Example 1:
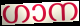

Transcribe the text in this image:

ഗാന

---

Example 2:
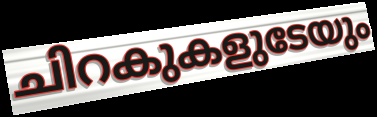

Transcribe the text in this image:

ചിറകുകളുടേയും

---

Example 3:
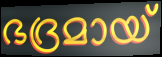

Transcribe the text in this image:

ഭദ്രമായ്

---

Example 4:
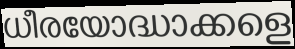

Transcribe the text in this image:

ധീരയോദ്ധാക്കളെ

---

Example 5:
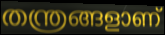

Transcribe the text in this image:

തന്ത്രങ്ങളാണ്